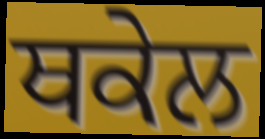
ਥਕੇਲ